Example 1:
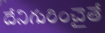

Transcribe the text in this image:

దేనిగురించైతే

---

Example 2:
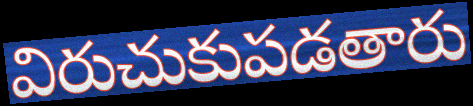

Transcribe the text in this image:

విరుచుకుపడతారు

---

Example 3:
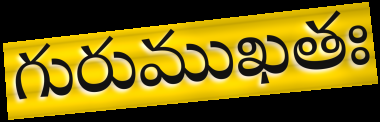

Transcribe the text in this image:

గురుముఖతః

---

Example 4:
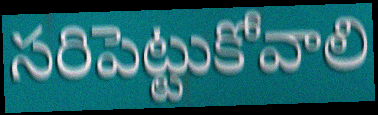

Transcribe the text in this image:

సరిపెట్టుకోవాలి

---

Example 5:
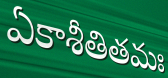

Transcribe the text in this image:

ఏకాశీతితమః